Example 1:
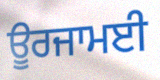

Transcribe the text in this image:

ਊਰਜਾਮਈ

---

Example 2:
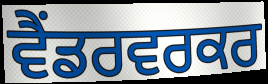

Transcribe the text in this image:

ਵੈਂਡਰਵਰਕਰ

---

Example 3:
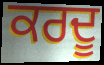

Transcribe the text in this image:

ਕਰਦੂ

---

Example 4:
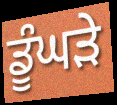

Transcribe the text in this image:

ਡੂੰਘੜੇ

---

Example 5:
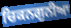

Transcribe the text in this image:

ਚਿਕਨਗੁਨੀਆ